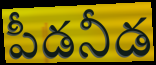
పీడనీడ